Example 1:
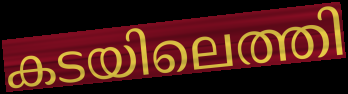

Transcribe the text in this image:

കടയിലെത്തി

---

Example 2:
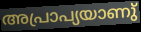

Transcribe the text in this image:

അപ്രാപ്യയാണു്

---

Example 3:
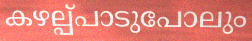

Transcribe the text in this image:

കഴല്പ്പാടുപോലും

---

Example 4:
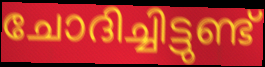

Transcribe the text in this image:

ചോദിച്ചിട്ടുണ്ട്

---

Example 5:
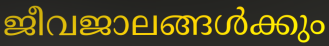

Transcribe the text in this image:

ജീവജാലങ്ങൾക്കും